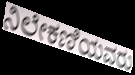
ನಿಲೇಕಣಿಯವರು